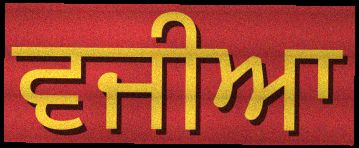
ਵਜੀਆ